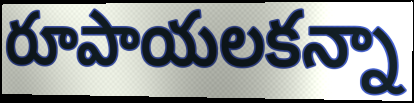
రూపాయలకన్నా